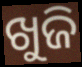
ଖୁଜି